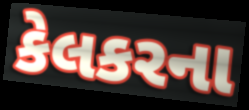
કેલકરના